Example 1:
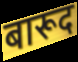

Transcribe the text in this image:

बारूद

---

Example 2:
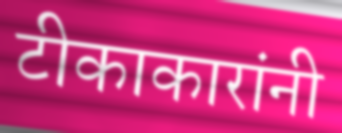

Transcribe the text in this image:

टीकाकारांनी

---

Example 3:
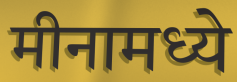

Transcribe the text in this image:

मीनामध्ये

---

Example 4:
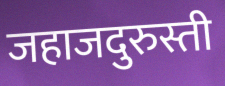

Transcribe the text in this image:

जहाजदुरुस्ती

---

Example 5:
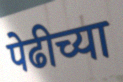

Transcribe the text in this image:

पेढीच्या